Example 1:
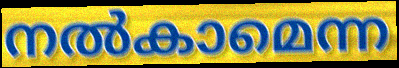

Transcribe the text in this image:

നൽകാമെന്ന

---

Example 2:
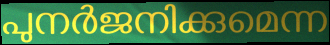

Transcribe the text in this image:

പുനർജനിക്കുമെന്ന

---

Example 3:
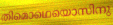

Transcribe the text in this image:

തിമൊഥെയൊസിനു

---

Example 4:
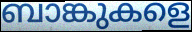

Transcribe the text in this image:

ബാങ്കുകളെ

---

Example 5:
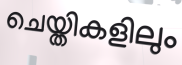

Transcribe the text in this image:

ചെയ്തികളിലും